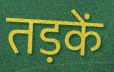
तड़कें